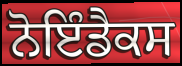
ਨੋਇੰਡੈਕਸ